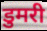
डुमरी